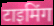
टाइमिंग